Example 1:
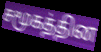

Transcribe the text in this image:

சமூகத்தின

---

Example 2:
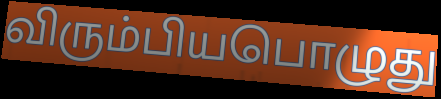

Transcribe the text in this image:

விரும்பியபொழுது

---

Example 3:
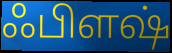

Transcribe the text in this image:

ஃபிளஷ்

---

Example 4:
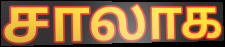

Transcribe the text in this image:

சாலாக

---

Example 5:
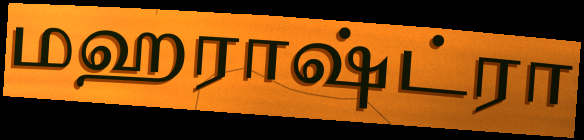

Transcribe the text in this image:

மஹராஷ்ட்ரா